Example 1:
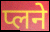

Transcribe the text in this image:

प्लने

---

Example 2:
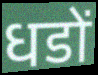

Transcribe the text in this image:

धडों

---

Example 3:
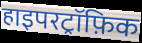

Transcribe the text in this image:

हाइपरट्रॉफ़िक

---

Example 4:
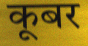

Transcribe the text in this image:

कूबर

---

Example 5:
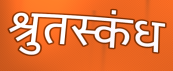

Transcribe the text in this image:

श्रुतस्कंध